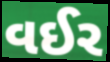
વઈર